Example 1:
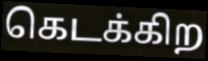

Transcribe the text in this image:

கெடக்கிற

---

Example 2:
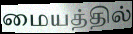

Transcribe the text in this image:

மையத்தில்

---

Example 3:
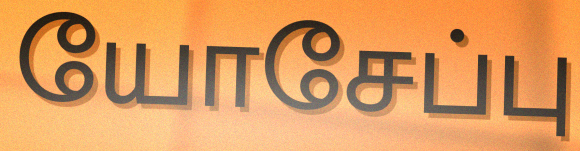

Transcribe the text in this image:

யோசேப்பு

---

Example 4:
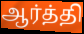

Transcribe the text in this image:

ஆர்த்தி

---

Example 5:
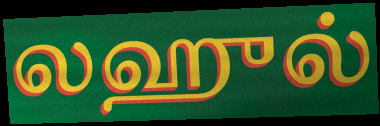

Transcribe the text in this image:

லஹுல்